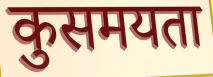
कुसमयता